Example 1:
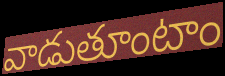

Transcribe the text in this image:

వాడుతూంటాం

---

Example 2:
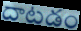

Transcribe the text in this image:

దాటడం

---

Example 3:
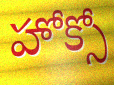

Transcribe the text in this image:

హోక్సో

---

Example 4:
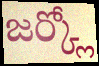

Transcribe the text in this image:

జర్క్లో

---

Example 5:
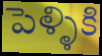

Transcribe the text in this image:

పెళ్ళికి